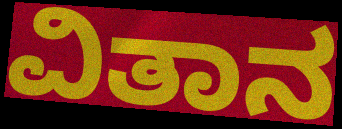
ವಿತಾನ